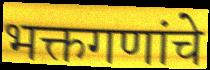
भक्तगणांचे